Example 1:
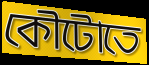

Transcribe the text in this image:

কৌটোতে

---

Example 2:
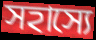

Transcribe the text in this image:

সহাস্যে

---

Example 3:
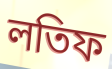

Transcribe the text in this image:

লতিফ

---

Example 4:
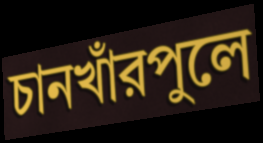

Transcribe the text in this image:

চানখাঁরপুলে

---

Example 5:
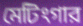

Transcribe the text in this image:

মেটিংগার